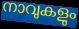
നാവുകളും